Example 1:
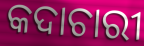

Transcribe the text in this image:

କଦାଚାରୀ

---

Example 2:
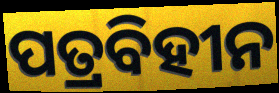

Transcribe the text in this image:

ପତ୍ରବିହୀନ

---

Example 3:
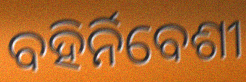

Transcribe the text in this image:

ବହିର୍ନିବେଶୀ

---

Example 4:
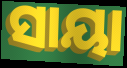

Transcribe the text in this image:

ସାୟା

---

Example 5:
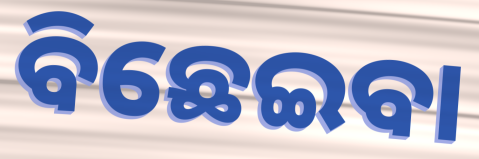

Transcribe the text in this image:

ବିଛେଇବା